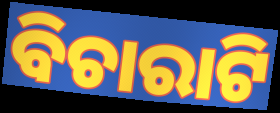
ବିଚାରାଟି